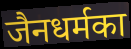
जैनधर्मका